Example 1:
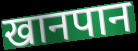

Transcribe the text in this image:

खानपान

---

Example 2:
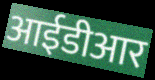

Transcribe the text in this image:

आईडीआर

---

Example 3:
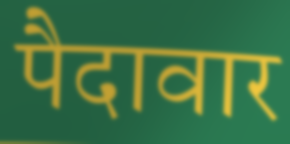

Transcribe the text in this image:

पैदावार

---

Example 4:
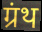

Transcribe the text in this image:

ग्रंथ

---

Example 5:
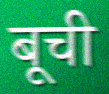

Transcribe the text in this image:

बूची